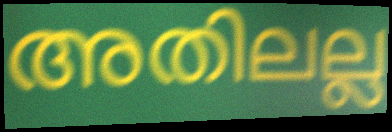
അതിലല്ല